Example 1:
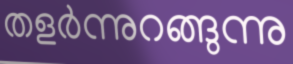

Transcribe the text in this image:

തളർന്നുറങ്ങുന്നു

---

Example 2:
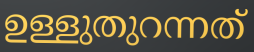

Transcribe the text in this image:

ഉള്ളുതുറന്നത്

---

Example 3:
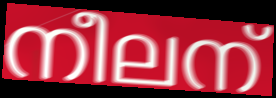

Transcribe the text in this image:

നീലന്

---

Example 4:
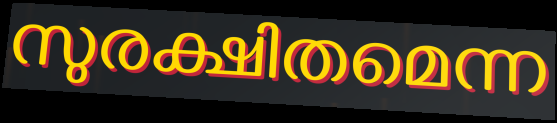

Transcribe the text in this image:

സുരക്ഷിതമെന്ന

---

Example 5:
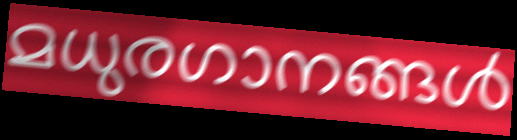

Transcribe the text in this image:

മധുരഗാനങ്ങൾ